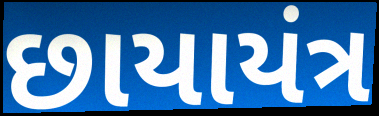
છાયાયંત્ર